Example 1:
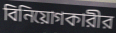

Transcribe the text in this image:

বিনিয়োগকারীর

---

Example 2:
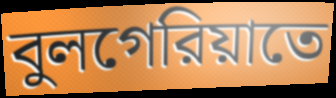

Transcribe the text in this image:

বুলগেরিয়াতে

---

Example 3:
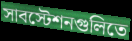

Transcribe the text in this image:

সাবস্টেশনগুলিতে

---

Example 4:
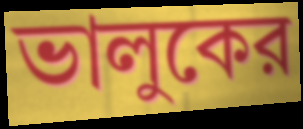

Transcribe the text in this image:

ভালুকের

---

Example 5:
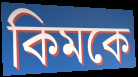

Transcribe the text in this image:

কিমকে